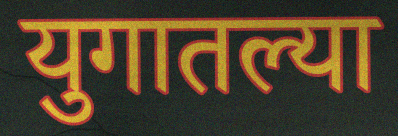
युगातल्या